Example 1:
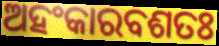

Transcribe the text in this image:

ଅହଂକାରବଶତଃ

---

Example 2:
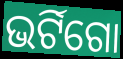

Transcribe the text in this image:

ଭର୍ଟିଗୋ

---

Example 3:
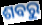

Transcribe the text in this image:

ଶବରୁ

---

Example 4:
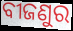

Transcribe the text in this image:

ବୀଜଣୁର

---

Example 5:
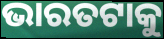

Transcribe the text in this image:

ଭାରତଟାକୁ